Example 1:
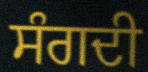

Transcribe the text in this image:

ਸੰਗਦੀ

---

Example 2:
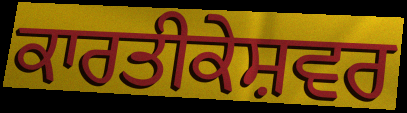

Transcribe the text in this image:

ਕਾਰਤੀਕੇਸ਼ਵਰ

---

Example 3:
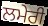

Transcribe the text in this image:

ਲਮੇਰੀ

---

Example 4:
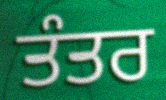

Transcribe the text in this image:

ਤੰਤਰ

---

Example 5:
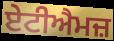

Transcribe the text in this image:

ਏਟੀਐਮਜ਼